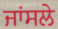
ਜਾਂਸਲੇ